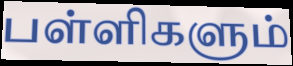
பள்ளிகளும்